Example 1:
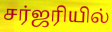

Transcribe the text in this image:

சர்ஜரியில்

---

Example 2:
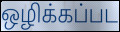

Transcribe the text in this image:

ஒழிக்கப்பட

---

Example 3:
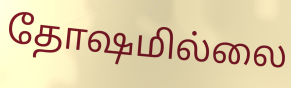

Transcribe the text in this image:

தோஷமில்லை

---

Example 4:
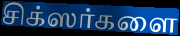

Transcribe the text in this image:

சிக்ஸர்களை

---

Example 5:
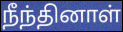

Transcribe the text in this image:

நீந்தினாள்